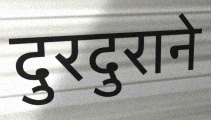
दुरदुराने